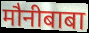
मौनीबाबा